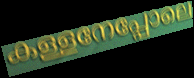
കള്ളനേപ്പോലെ